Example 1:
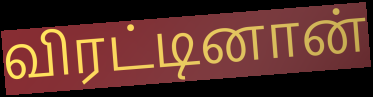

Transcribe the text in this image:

விரட்டினான்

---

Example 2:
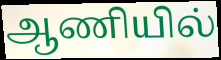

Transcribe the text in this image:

ஆணியில்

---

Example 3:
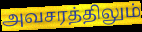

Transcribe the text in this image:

அவசரத்திலும்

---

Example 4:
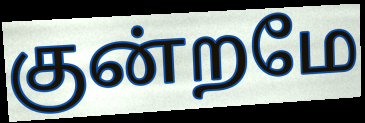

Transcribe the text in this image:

குன்றமே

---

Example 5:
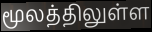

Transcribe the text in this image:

மூலத்திலுள்ள